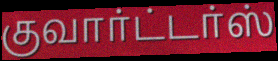
குவார்ட்டர்ஸ்